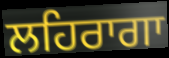
ਲਹਿਰਾਗਾ